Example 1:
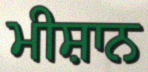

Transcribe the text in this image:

ਮੀਸ਼ਾਨ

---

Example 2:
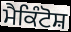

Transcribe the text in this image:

ਮੈਕਿੰਟੋਸ਼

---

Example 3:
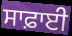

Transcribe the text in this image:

ਸਾਫ਼ਾਈ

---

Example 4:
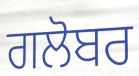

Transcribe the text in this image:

ਗਲੋਬਰ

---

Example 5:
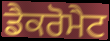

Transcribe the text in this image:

ਡੈਕਰੋਮੈਟ